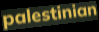
palestinian